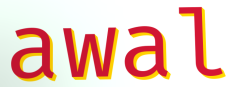
awal